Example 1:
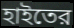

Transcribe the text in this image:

হাইতের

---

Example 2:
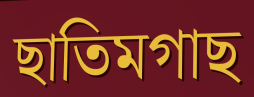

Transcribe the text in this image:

ছাতিমগাছ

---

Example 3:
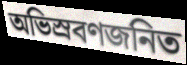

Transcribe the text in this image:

অভিস্রবণজনিত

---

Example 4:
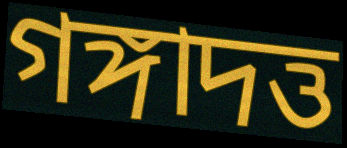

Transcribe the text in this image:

গঙ্গাদত্ত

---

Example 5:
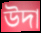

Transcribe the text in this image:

উদা